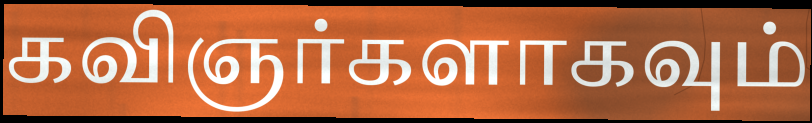
கவிஞர்களாகவும்